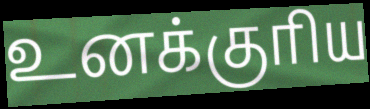
உனக்குரிய